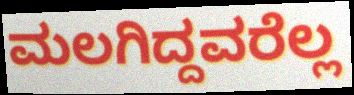
ಮಲಗಿದ್ದವರೆಲ್ಲ